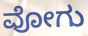
ವೋಗು